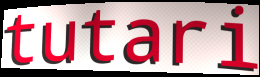
tutari